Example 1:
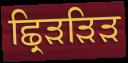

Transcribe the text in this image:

ਛ੍ਰਿੜੜਿੜ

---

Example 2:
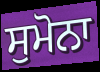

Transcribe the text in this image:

ਸੁਮੋਨਾ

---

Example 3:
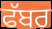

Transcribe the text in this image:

ਫੱਬਰ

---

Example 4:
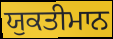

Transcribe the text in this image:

ਯੁਕਤੀਮਾਨ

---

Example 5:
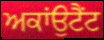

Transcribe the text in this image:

ਅਕਾਂਉਟੈਂਟ